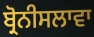
ਬ੍ਰੋਨੀਸਲਾਵਾ